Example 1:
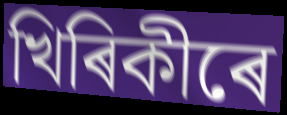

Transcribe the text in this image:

খিৰিকীৰে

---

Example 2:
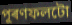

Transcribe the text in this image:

পূৰণফলটো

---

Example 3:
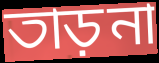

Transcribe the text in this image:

তাড়না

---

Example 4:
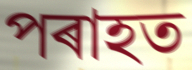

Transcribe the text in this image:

পৰাহত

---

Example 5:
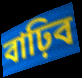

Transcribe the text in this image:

বাঢ়িব